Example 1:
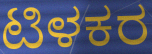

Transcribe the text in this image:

ಟಿಳಕರ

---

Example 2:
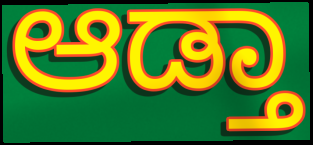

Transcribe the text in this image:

ಆಡ್ತಾ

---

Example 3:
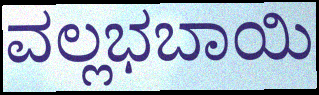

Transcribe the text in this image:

ವಲ್ಲಭಬಾಯಿ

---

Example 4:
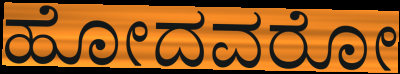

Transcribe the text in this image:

ಹೋದವರೋ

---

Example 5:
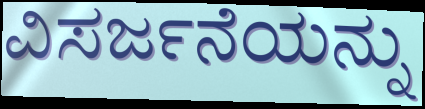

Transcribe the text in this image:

ವಿಸರ್ಜನೆಯನ್ನು